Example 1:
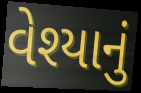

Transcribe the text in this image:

વેશ્યાનું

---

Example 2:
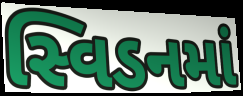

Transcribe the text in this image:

સ્વિડનમાં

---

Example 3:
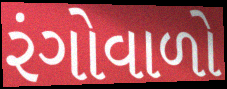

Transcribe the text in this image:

રંગોવાળો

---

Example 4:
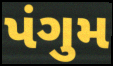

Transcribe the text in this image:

પંગુમ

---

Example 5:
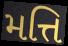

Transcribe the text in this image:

મત્તિ